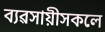
ব্যৱসায়ীসকলে